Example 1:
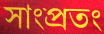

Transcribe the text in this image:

সাংপ্রতং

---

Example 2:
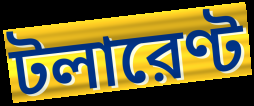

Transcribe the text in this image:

টলারেণ্ট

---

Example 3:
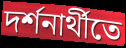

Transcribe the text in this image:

দর্শনার্থীতে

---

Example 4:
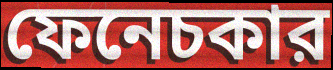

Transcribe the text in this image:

ফেনেচকার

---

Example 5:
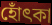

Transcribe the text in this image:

হোঁৎকা